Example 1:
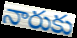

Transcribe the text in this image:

నారుకు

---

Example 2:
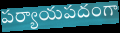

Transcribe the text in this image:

పర్యాయపదంగా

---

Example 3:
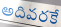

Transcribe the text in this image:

అదివరకే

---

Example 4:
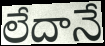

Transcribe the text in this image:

లేదానే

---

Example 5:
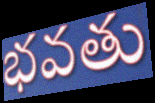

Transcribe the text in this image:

భవతు